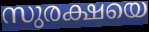
സുരക്ഷയെ